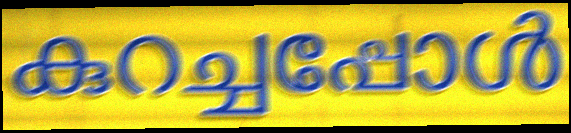
കുറച്ചപ്പോൾ